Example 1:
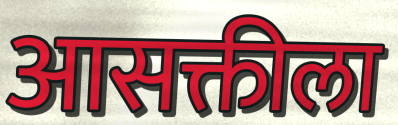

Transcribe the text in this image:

आसक्तीला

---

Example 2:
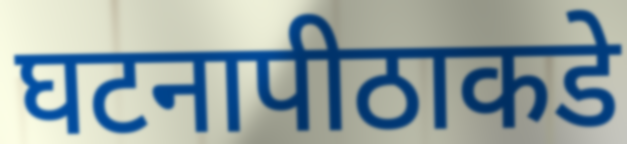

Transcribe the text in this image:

घटनापीठाकडे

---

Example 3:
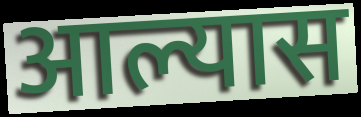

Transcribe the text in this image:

आल्यास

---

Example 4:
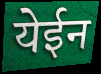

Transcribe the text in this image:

येईन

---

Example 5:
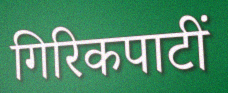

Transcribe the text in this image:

गिरिकपाटीं